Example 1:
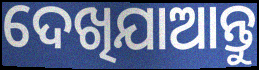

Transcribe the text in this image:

ଦେଖିଯାଆନ୍ତୁ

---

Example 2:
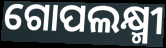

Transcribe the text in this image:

ଗୋପଲକ୍ଷ୍ମୀ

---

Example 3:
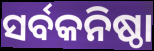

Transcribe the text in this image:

ସର୍ବକନିଷ୍ଠା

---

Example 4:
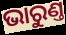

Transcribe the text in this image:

ଭାରୁଣ୍ତ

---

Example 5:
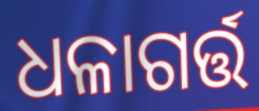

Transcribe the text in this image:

ଧଳାଗର୍ତ୍ତ